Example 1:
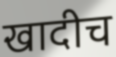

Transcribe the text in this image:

खादीच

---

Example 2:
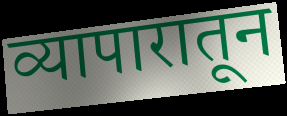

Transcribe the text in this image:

व्यापारातून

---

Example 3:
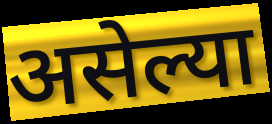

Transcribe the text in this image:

असेल्या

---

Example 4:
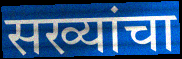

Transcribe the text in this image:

सख्यांचा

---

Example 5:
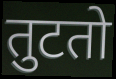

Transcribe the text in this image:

तुटतो